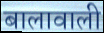
बालावाली